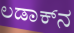
ಲಡಾಕ್‌ನ